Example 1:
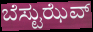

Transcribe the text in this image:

ಬೆಸ್ಟುಝೆವ್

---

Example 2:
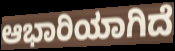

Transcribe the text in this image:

ಆಭಾರಿಯಾಗಿದೆ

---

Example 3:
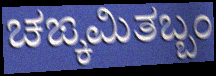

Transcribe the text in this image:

ಚಙ್ಕಮಿತಬ್ಬಂ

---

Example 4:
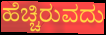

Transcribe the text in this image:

ಹೆಚ್ಚಿರುವದು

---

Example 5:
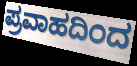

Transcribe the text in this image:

ಪ್ರವಾಹದಿಂದ